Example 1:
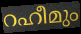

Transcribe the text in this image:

റഹീമും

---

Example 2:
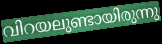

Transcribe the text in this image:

വിറയലുണ്ടായിരുന്നു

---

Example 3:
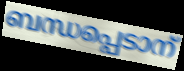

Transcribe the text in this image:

ബന്ധപ്പെടാന്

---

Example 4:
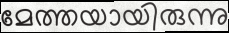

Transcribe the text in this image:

മേത്തയായിരുന്നു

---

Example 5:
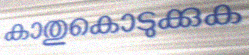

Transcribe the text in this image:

കാതുകൊടുക്കുക